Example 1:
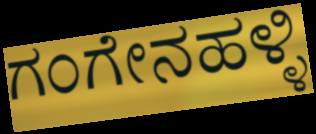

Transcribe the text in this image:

ಗಂಗೇನಹಳ್ಳಿ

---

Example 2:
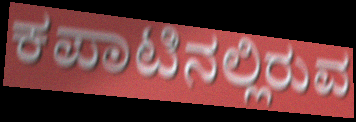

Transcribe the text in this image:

ಕಪಾಟಿನಲ್ಲಿರುವ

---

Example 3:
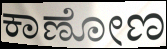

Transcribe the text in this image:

ಕಾಣೋಣ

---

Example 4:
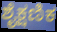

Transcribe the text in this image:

ಶೈಕ್ಷಣಿಕ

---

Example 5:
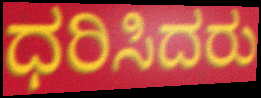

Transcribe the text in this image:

ಧರಿಸಿದರು